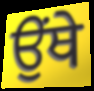
ਉੰਥੇ